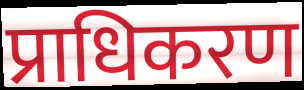
प्राधिकरण